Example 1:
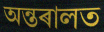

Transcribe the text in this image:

অন্তৰালত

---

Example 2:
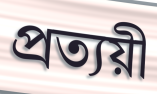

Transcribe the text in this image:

প্ৰত্যয়ী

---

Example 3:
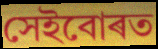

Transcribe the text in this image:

সেইবোৰত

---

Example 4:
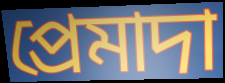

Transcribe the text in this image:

প্ৰেমাদা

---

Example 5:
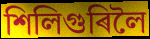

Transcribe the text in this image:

শিলিগুৰিলৈ